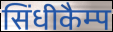
सिंधीकैम्प